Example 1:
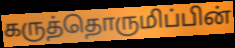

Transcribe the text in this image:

கருத்தொருமிப்பின்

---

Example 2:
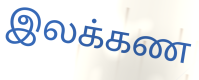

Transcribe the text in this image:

இலக்கண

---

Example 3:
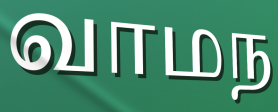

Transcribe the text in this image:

வாமந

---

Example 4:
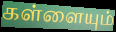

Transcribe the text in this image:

கள்ளையும்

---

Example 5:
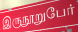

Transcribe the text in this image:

இருநூறுபேர்